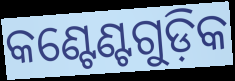
କଣ୍ଟେଣ୍ଟଗୁଡ଼ିକ